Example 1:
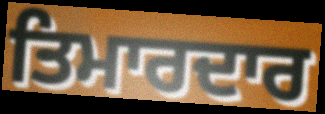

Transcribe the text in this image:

ਤਿਮਾਰਦਾਰ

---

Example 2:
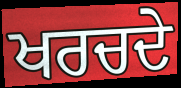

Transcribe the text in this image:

ਖਰਚਦੇ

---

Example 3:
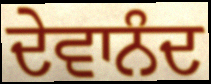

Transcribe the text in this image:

ਦੇਵਾਨੰਦ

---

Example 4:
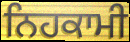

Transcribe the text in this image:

ਨਿਹਕਾਮੀ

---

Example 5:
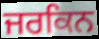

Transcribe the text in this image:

ਜਰਕਿਨ